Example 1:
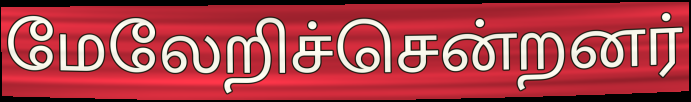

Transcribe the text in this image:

மேலேறிச்சென்றனர்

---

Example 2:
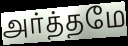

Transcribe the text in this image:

அர்த்தமே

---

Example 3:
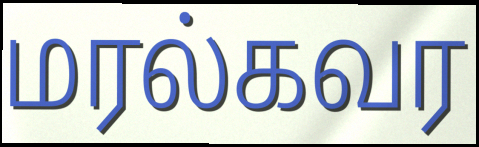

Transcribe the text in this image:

மரல்கவர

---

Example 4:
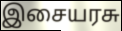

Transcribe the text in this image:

இசையரசு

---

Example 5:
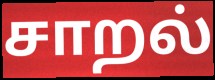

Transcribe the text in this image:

சாறல்